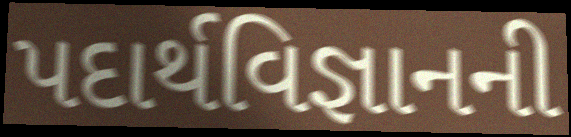
પદાર્થવિજ્ઞાનની